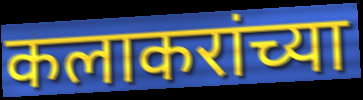
कलाकरांच्या